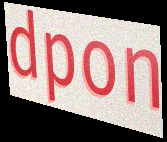
dpon